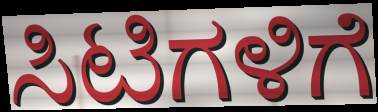
ಸಿಟಿಗಳಿಗೆ